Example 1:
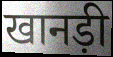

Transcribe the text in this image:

खानड़ी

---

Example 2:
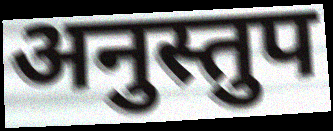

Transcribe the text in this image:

अनुस्तुप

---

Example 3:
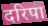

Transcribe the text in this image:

दरिपा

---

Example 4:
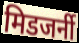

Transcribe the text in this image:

मिडजर्नी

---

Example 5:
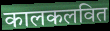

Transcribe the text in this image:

कालकलवित